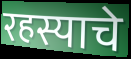
रहस्याचे